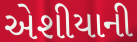
એશીયાની